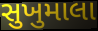
સુખુમાલા